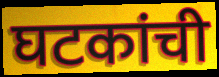
घटकांची